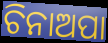
ଚିନାଅପା